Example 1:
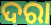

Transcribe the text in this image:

ଦରା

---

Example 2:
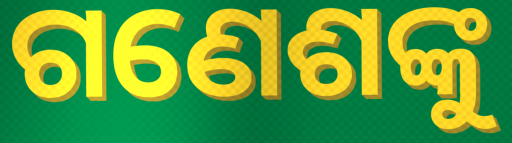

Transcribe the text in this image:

ଗଣେଶଙ୍କୁ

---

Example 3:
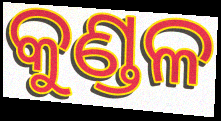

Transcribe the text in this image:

କୁଣ୍ଡଳ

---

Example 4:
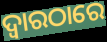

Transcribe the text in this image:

ଦ୍ୱାରଠାରେ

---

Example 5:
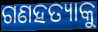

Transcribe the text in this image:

ଗଣହତ୍ୟାକୁ